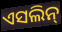
ଏସଲିନ୍